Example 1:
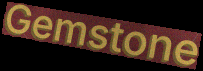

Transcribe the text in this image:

Gemstone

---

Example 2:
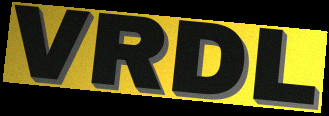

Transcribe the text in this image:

VRDL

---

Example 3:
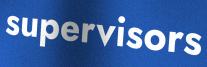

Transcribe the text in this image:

supervisors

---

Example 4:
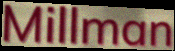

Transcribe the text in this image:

Millman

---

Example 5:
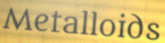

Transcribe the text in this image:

Metalloids